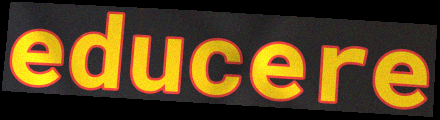
educere